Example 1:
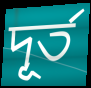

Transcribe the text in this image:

দূর্ত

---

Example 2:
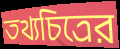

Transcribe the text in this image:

তথ্যচিত্রের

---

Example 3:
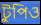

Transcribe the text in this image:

টুপিও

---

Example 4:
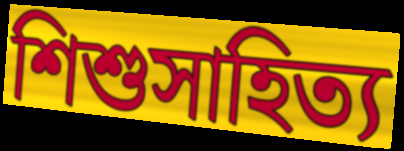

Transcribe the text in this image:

শিশুসাহিত্য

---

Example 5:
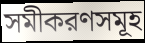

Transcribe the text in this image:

সমীকরণসমূহ